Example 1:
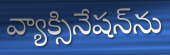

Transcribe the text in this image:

వ్యాక్సినేషన్‌ను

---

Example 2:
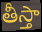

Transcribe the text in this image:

తీస్తా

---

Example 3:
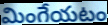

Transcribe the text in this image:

మింగేయటం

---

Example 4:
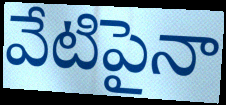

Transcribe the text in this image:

వేటిపైనా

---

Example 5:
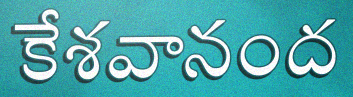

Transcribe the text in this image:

కేశవానంద